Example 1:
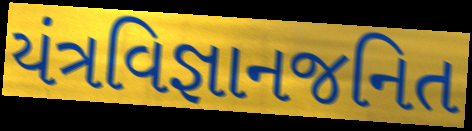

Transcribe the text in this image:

યંત્રવિજ્ઞાનજનિત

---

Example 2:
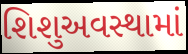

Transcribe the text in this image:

શિશુઅવસ્થામાં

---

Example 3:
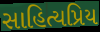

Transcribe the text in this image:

સાહિત્યપ્રિય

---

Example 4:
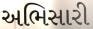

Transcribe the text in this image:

અભિસારી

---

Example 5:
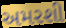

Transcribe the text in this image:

અમરશી